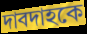
দাবদাহকে